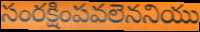
సంరక్షింపవలెననియు